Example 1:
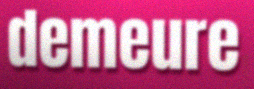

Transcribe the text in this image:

demeure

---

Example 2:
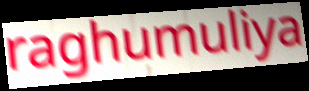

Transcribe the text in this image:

raghumuliya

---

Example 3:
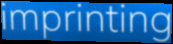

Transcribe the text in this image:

imprinting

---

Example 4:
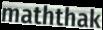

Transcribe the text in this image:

maththak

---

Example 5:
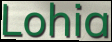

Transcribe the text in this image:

Lohia